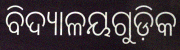
ବିଦ୍ୟାଳୟଗୁଡ଼ିକ